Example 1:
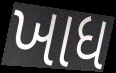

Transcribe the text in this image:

ખાધ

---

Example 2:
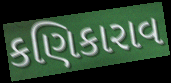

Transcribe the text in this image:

કણિકારાવ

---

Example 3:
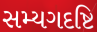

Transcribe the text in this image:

સમ્યગદષ્ટિ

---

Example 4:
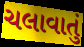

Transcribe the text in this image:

ચલાવાતું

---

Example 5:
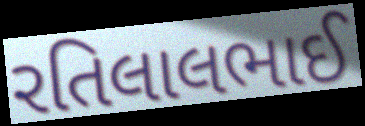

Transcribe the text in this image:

રતિલાલભાઈ